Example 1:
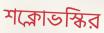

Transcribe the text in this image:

শক্লোভস্কির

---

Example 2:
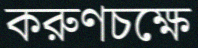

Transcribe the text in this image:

করুণচক্ষে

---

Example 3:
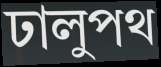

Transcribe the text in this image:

ঢালুপথ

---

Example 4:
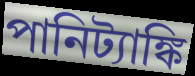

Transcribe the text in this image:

পানিট্যাঙ্কি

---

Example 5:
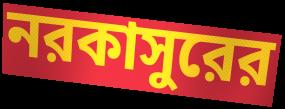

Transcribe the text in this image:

নরকাসুরের